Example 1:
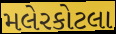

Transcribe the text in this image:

મલેરકોટલા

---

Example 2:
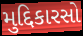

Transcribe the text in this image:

મુદ્દિકારસો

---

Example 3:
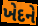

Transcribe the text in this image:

ખેદને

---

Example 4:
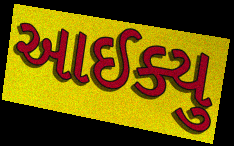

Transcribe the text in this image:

આઈક્યુ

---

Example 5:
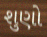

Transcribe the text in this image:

શુણો